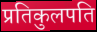
प्रतिकुलपति